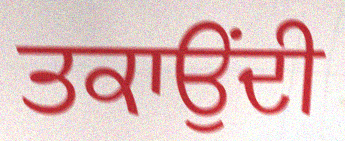
ਤਕਾਉਂਦੀ